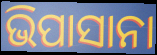
ଭିପାସାନା